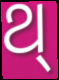
ଥ୍